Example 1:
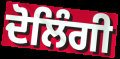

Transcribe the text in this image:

ਦੋਲਿੰਗੀ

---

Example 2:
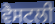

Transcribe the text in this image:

ਵੈਸਟਲੀ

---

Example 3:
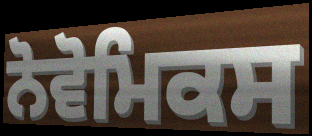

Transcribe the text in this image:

ਨੋਵੋਮਿਕਸ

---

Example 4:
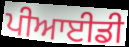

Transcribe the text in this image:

ਪੀਆਈਡੀ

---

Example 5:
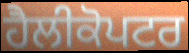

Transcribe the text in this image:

ਹੈਲੀਕੋਪਟਰ